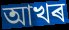
আখৰ